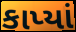
કાપ્યાં